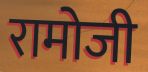
रामोजी